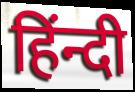
हिंन्दी